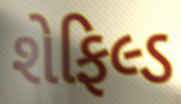
શેફિલ્ડ